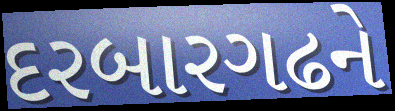
દરબારગઢને